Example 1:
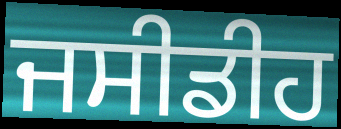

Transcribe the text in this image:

ਜਸੀਡੀਹ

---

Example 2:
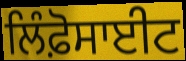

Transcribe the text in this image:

ਲਿੰਫ਼ੋਸਾਈਟ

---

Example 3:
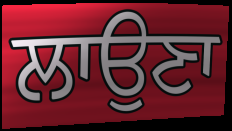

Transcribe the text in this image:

ਲਾਉਣਾ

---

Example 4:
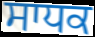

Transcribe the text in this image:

ਸਾਧਕ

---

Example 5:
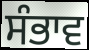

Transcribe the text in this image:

ਸੰਭਾਵ